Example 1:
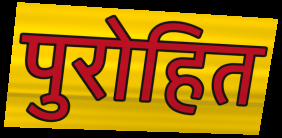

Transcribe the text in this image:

पुरोहित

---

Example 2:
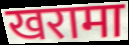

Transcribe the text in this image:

खरामा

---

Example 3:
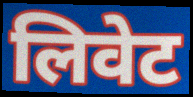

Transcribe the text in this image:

लिवेट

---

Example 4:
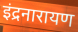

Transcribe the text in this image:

इंद्रनारायण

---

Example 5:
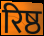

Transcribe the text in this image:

रिष्ठ